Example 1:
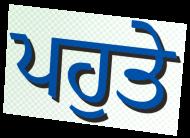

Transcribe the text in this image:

ਪਹੁਤੇ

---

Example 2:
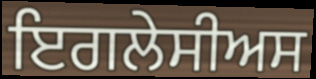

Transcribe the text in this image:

ਇਗਲੇਸੀਅਸ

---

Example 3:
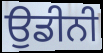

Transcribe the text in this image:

ਉਡੀਨੀ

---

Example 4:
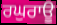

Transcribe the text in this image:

ਰਘੁਰਾਊ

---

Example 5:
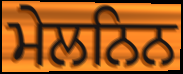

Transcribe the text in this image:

ਮੇਲਨਿਨ